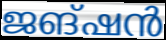
ജങ്ഷൻ